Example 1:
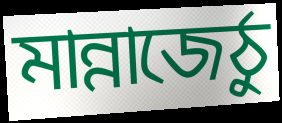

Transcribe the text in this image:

মান্নাজেঠু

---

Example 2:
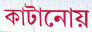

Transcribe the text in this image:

কাটানোয়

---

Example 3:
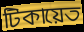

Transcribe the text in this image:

টিকায়েত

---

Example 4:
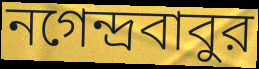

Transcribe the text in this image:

নগেন্দ্রবাবুর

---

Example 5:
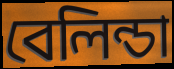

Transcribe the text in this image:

বেলিন্ডা